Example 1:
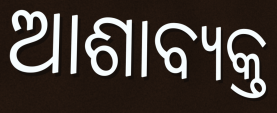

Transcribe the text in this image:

ଆଶାବ୍ୟକ୍ତ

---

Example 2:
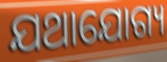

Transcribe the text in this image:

ଯଥାଯୋଗ୍ୟ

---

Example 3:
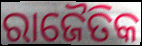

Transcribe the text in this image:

ରାଜୈତିକ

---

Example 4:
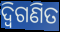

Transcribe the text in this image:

ଦ୍ୱିଗଣିତ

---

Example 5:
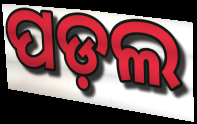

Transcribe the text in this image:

ପଡ଼ଲ